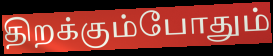
திறக்கும்போதும்